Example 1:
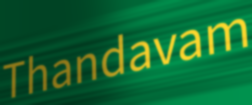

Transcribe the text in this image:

Thandavam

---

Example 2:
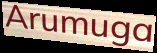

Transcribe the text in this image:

Arumuga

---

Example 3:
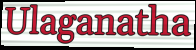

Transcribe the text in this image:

Ulaganatha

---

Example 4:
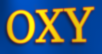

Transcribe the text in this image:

OXY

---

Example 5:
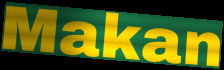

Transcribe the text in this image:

Makan